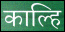
काल्हि